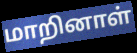
மாறினாள்